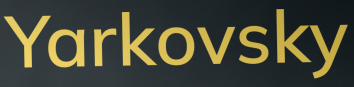
Yarkovsky